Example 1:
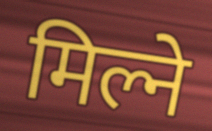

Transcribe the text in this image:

मिल्ने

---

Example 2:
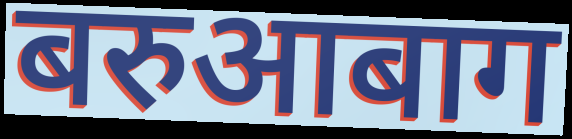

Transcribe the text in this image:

बरुआबाग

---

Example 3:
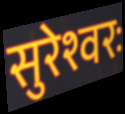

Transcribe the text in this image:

सुरेश्वरः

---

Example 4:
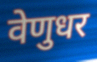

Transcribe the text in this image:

वेणुधर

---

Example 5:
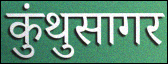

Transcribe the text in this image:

कुंथुसागर